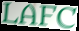
LAFC